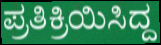
ಪ್ರತಿಕ್ರಿಯಿಸಿದ್ದ